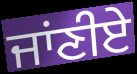
ਜਾਂਣੀਏ